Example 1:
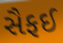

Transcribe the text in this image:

સૈફઈ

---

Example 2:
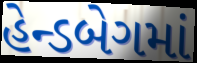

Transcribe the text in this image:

હેન્ડબેગમાં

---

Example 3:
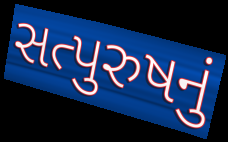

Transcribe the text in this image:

સત્પુરુષનું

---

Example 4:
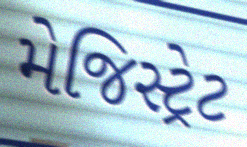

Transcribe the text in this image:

મેજિસ્ટ્રેટ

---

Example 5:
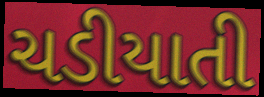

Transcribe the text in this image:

ચડીયાતી